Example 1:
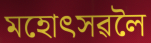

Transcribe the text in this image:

মহোৎসৱলৈ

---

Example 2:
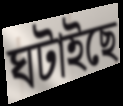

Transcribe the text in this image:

ঘটাইছে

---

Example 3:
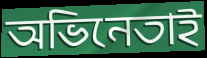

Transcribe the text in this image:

অভিনেতাই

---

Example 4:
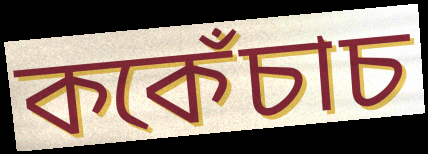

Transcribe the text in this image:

ককেঁচাচ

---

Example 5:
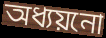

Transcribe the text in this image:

অধ্যয়নো